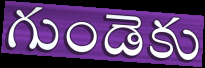
గుండెకు